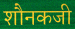
शौनकजी